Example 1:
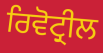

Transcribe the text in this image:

ਰਿਵੋਟ੍ਰੀਲ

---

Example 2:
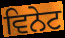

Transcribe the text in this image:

ਵਿਨੇਟ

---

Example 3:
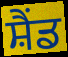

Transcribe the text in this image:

ਸ਼ੈਂਡ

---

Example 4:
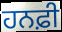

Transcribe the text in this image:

ਹਨਫ਼ੀ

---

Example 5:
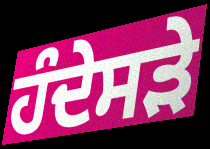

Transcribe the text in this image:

ਹੰਦੇਸੜੇ